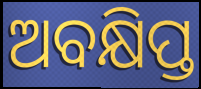
ଅବକ୍ଷିପ୍ତ